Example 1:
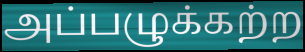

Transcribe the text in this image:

அப்பழுக்கற்ற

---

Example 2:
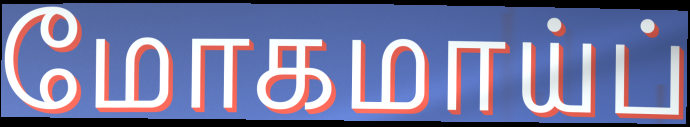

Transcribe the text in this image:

மோகமாய்ப்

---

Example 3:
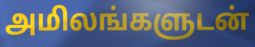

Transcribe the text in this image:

அமிலங்களுடன்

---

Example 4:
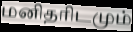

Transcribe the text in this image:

மனிதரிடமும்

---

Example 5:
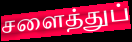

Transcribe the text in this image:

சளைத்துப்